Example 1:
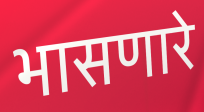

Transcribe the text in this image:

भासणारे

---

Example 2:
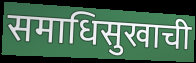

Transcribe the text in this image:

समाधिसुखाची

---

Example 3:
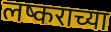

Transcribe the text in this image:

लष्कराच्या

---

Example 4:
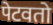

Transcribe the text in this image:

पेटवतो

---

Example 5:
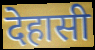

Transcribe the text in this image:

देहासी